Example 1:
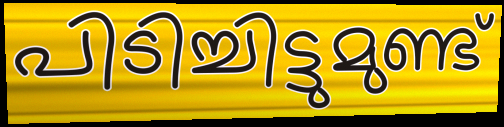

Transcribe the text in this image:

പിടിച്ചിട്ടുമുണ്ട്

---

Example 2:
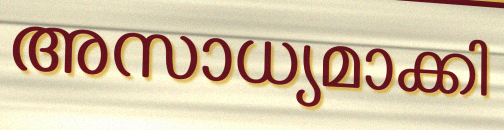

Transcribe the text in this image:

അസാധ്യമാക്കി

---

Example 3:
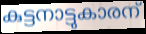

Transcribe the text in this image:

കുട്ടനാട്ടുകാരന്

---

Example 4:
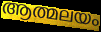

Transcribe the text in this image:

ആത്മലയം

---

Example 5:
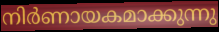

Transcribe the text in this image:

നിർണായകമാക്കുന്നു